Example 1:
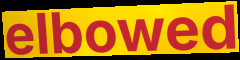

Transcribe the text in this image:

elbowed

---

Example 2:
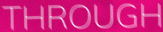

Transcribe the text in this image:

THROUGH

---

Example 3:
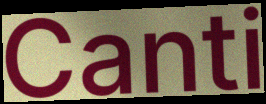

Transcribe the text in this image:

Canti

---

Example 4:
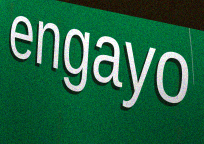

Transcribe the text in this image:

engayo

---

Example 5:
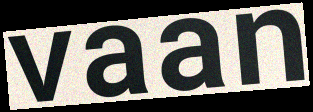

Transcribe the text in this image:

vaan